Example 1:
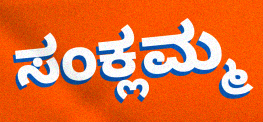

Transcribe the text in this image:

ಸಂಕ್ಲಮ್ಮ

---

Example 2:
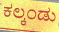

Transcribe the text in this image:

ಕಲ್ಕಂಡು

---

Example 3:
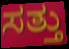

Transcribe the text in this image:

ಸತ್ತು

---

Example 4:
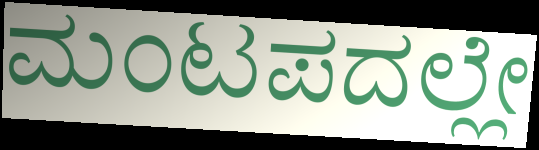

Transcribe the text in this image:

ಮಂಟಪದಲ್ಲೇ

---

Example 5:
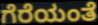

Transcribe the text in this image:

ಗೆರೆಯಂತೆ